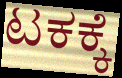
ಟಕಕ್ಕೆ